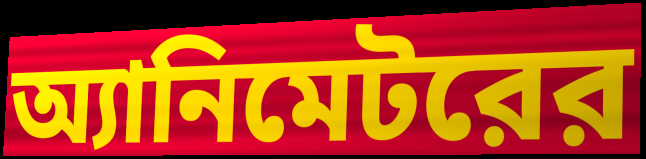
অ্যানিমেটরের